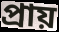
প্ৰায়